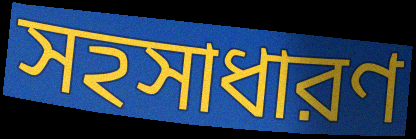
সহসাধারণ